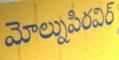
మోల్నుపిరవిర్